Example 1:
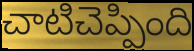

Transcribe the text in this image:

చాటిచెప్పింది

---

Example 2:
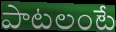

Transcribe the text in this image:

పాటలంటే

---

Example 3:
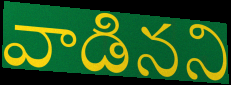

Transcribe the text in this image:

వాడినని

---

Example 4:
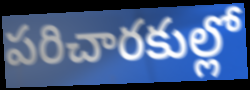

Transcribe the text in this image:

పరిచారకుల్లో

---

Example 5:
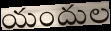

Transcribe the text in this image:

యందుల